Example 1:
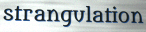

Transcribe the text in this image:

strangulation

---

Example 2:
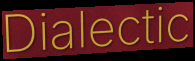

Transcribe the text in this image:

Dialectic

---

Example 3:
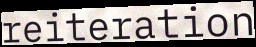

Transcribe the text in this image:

reiteration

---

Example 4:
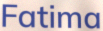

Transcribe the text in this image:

Fatima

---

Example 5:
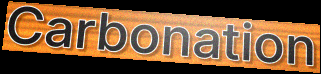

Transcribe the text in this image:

Carbonation